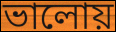
ভালোয়